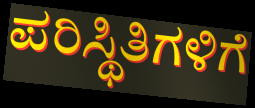
ಪರಿಸ್ಥಿತಿಗಳಿಗೆ